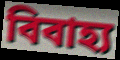
বিবাহ্য